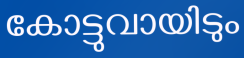
കോട്ടുവായിടും